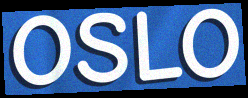
OSLO